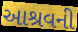
આશ્રવની